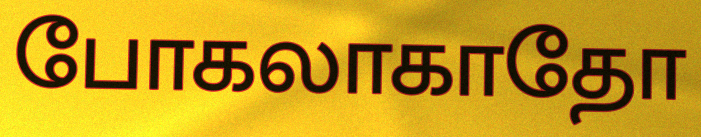
போகலாகாதோ